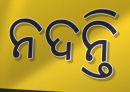
ନଦନ୍ତି